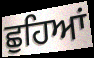
ਛੁਹਿਆਂ